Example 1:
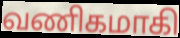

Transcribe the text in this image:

வணிகமாகி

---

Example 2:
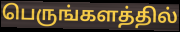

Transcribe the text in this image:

பெருங்களத்தில்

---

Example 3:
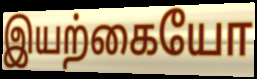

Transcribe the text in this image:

இயற்கையோ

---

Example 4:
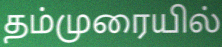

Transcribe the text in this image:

தம்முரையில்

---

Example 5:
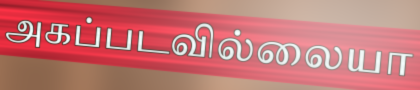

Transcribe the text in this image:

அகப்படவில்லையா